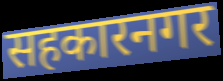
सहकारनगर